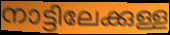
നാട്ടിലേക്കുള്ള